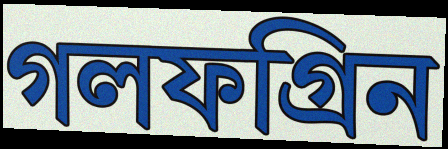
গলফগ্রিন